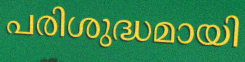
പരിശുദ്ധമായി